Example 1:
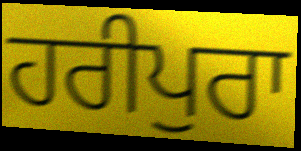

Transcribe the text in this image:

ਹਰੀਪੁਰਾ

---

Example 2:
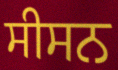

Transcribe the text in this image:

ਸੀਸਨ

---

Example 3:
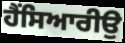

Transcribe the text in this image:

ਹੈਂਸਿਆਰੀਉ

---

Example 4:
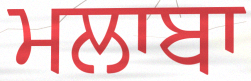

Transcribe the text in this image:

ਮਲਾਬਾ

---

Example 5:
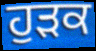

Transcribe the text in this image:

ਹੁੜਕ